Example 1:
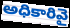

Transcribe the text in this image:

అధికారివై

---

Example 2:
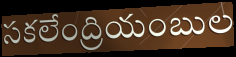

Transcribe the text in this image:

సకలేంద్రియంబుల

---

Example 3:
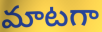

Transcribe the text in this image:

మాటగా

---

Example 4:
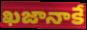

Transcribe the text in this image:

ఖజానాకే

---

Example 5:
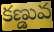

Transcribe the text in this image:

కణ్డువ